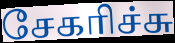
சேகரிச்சு